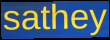
sathey